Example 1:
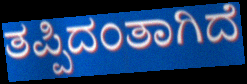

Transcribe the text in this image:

ತಪ್ಪಿದಂತಾಗಿದೆ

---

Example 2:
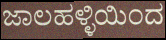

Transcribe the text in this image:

ಜಾಲಹಳ್ಳಿಯಿಂದ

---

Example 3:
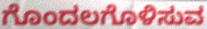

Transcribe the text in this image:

ಗೊಂದಲಗೊಳಿಸುವ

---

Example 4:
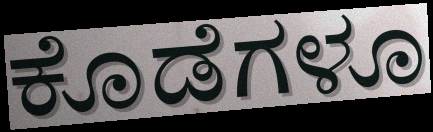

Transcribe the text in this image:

ಕೊಡೆಗಳೂ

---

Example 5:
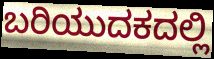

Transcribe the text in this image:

ಬರಿಯುದಕದಲ್ಲಿ